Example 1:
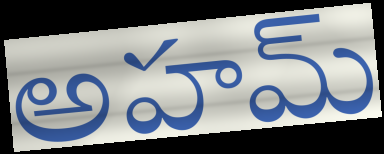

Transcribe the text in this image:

అహమ్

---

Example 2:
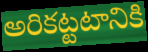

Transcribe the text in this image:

అరికట్టటానికి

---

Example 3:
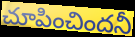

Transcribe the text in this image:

చూపించిందనీ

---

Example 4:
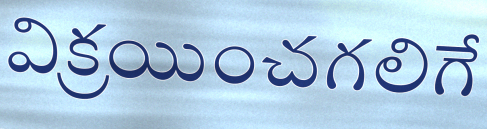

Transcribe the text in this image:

విక్రయించగలిగే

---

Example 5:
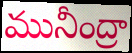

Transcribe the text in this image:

మునీంద్రా